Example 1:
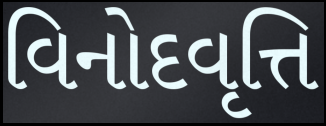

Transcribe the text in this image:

વિનોદવૃત્તિ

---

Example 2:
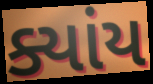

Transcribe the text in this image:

ક્યાંય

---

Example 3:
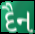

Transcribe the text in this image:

દૈન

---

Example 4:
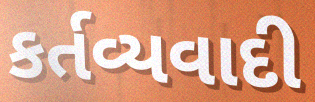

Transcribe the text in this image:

કર્તવ્યવાદી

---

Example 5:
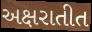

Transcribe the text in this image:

અક્ષરાતીત